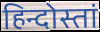
हिन्दोस्तां